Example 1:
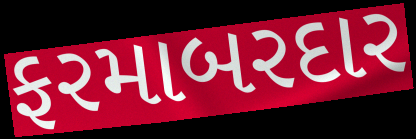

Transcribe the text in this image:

ફરમાબરદાર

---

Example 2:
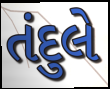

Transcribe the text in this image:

તંદુલે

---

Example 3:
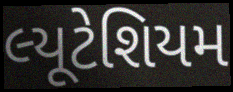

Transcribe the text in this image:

લ્યૂટેશિયમ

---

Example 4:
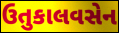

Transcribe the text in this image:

ઉતુકાલવસેન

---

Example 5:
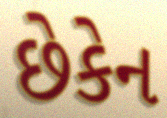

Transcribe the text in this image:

છેકેન